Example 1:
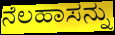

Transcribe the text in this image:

ನೆಲಹಾಸನ್ನು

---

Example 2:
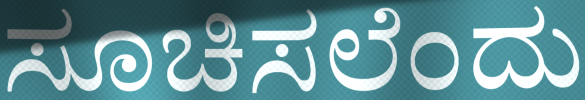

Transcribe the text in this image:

ಸೂಚಿಸಲೆಂದು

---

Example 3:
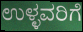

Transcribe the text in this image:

ಉಳ್ಳವರಿಗೆ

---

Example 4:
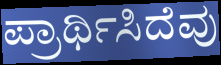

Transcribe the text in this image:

ಪ್ರಾರ್ಥಿಸಿದೆವು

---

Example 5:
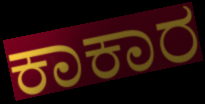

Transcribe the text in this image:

ಕಾಕಾರ